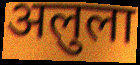
अलुला